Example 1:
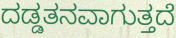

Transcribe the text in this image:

ದಡ್ಡತನವಾಗುತ್ತದೆ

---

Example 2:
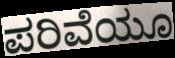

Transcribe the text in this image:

ಪರಿವೆಯೂ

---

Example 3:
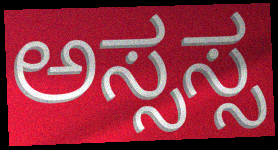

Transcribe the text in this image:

ಅಸ್ಸಸ್ಸ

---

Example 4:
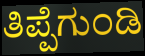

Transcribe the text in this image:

ತಿಪ್ಪೆಗುಂಡಿ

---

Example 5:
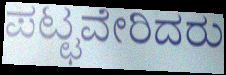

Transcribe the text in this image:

ಪಟ್ಟವೇರಿದರು